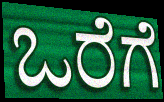
ಒರೆಗೆ